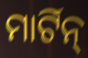
ମାର୍ଟିନ୍